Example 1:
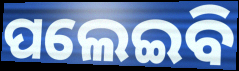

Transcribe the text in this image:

ପଲେଇବି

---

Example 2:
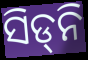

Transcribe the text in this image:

ସିଡ୍‍ନି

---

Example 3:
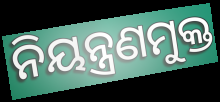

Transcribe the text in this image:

ନିୟନ୍ତ୍ରଣମୁକ୍ତ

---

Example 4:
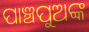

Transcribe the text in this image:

ପାଞ୍ଚପୁଅଙ୍କ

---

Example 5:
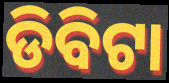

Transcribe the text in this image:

ଡିବିଟା